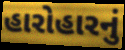
હારોહારનું